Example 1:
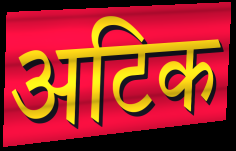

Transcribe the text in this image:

अटिक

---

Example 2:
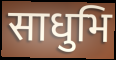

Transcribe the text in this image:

साधुभि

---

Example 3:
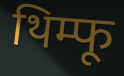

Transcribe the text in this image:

थिम्फू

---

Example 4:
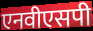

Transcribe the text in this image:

एनवीएसपी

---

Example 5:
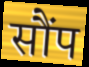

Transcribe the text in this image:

सौंप